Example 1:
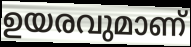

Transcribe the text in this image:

ഉയരവുമാണ്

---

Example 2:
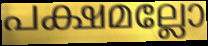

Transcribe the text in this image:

പക്ഷമല്ലോ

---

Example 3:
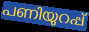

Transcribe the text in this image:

പണിയുറപ്പ്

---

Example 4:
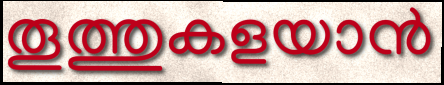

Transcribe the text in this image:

തൂത്തുകളയാൻ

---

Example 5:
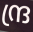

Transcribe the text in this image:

ന്ദ്ര